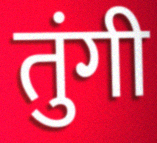
तुंगी